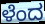
ಳೆಂದ